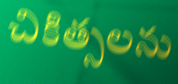
చికిత్సలను